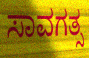
ಸಾವಗತ್ಸ